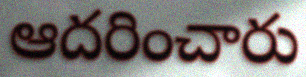
ఆదరించారు